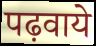
पढ़वाये